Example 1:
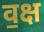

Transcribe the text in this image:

व॒क्ष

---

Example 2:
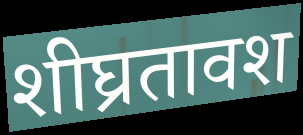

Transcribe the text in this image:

शीघ्रतावश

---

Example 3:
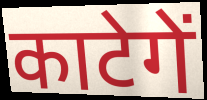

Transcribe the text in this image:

काटेगें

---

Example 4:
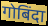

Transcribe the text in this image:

गोबिंदा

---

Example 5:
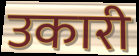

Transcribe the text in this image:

उकारी